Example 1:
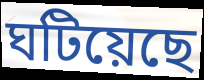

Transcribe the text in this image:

ঘটিয়েছে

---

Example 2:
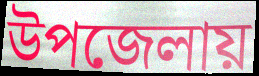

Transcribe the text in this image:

উপজেলায়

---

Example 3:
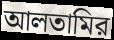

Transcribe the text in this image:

আলতামির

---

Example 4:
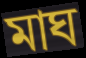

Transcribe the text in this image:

মাঘ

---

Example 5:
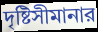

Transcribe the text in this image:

দৃষ্টিসীমানার